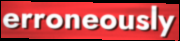
erroneously